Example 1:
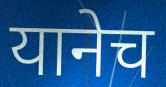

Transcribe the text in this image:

यानेच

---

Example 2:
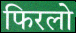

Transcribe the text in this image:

फिरलो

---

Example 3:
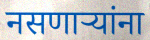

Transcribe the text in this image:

नसणाऱ्यांना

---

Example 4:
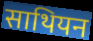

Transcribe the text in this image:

साथियन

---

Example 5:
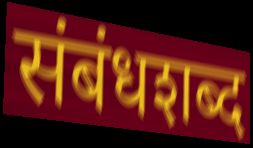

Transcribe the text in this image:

संबंधशब्द